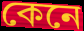
কেনে